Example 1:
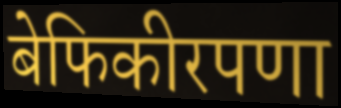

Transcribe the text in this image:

बेफिकीरपणा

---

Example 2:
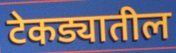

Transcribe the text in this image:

टेकड्यातील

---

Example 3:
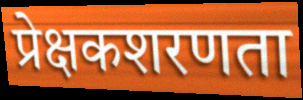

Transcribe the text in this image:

प्रेक्षकशरणता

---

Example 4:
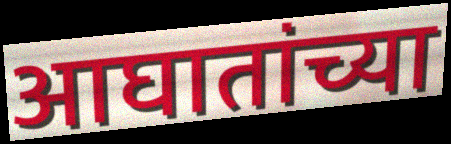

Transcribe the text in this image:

आघातांच्या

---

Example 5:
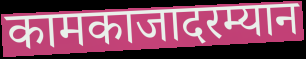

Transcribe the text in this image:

कामकाजादरम्यान